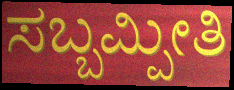
ಸಬ್ಬಮ್ಪೀತಿ